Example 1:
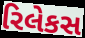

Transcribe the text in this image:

રિલેકસ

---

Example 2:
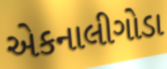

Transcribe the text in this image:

એકનાલીગોડા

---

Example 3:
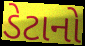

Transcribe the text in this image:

ડેટાનો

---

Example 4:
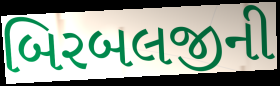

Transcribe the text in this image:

બિરબલજીની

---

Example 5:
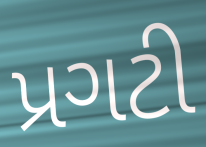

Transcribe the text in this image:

પ્રગટી